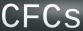
CFCs